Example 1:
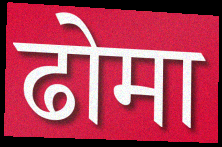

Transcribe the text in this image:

ढोमा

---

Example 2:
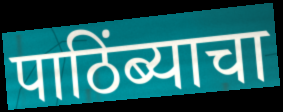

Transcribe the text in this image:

पाठिंब्याचा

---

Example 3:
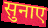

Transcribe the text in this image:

सुनाए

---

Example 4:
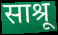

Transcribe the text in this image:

साश्रू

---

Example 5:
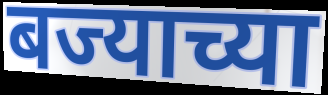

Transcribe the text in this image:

बज्याच्या